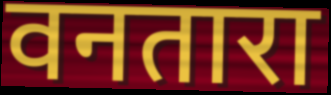
वनतारा